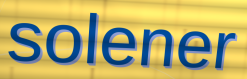
solener